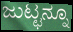
ಜುಟ್ಟನ್ನೂ